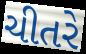
ચીતરે